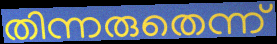
തിന്നരുതെന്ന്